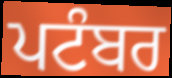
ਪਟੰਬਰ